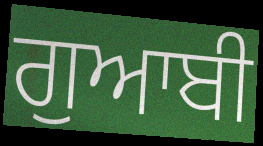
ਗੁਆਬੀ